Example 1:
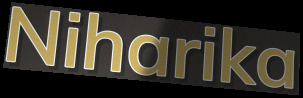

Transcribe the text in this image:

Niharika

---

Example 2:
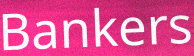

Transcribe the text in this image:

Bankers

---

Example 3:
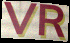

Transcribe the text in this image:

VR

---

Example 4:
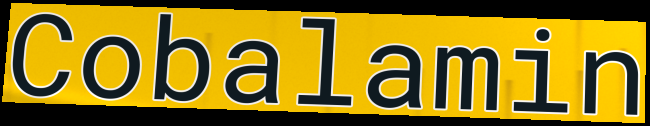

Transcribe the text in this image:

Cobalamin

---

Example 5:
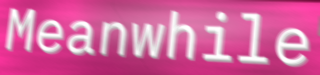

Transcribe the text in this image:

Meanwhile